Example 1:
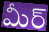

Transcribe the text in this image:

మీర్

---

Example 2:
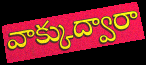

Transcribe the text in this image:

వాక్కుద్వారా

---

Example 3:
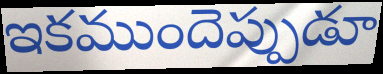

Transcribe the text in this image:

ఇకముందెప్పుడూ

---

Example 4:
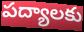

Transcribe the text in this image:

పద్యాలకు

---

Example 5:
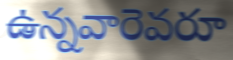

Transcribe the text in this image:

ఉన్నవారెవరూ